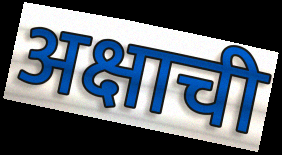
अक्षाची